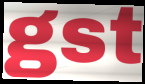
gst